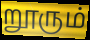
றூரும்